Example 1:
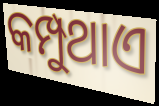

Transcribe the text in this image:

କମ୍ପୁଥାଏ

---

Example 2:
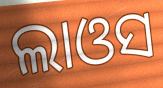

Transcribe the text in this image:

ଲାଓସ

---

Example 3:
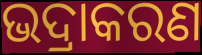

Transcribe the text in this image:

ଭଦ୍ରାକରଣ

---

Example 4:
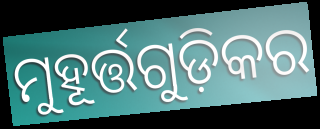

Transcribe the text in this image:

ମୁହୂର୍ତ୍ତଗୁଡ଼ିକର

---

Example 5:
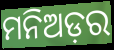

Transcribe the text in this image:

ମନିଅଡ଼ର